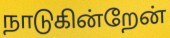
நாடுகின்றேன்